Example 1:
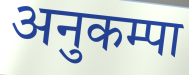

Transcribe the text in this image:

अनुकम्पा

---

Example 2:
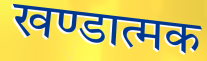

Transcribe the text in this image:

खण्डात्मक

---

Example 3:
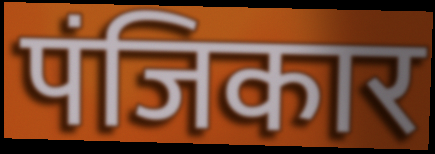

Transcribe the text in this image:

पंजिकार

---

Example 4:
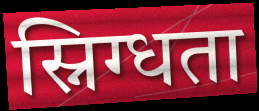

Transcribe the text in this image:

स्निग्धता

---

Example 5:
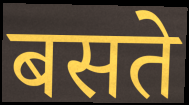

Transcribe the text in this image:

बसते